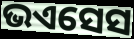
ଭଏସେସ